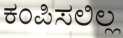
ಕಂಪಿಸಲಿಲ್ಲ